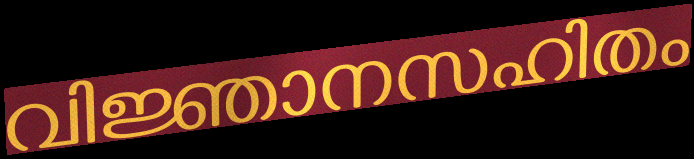
വിജ്ഞാനസഹിതം